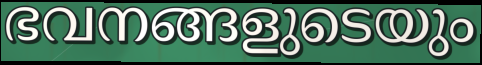
ഭവനങ്ങളുടെയും